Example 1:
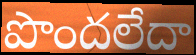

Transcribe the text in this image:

పొందలేదా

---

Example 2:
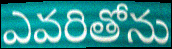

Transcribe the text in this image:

ఎవరితోను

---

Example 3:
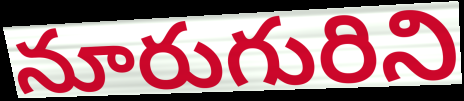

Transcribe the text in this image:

నూరుగురిని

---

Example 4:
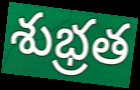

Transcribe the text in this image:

శుభ్రత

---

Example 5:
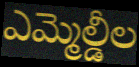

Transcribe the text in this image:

ఎమ్మెల్డీల